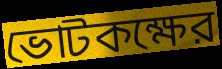
ভোটকক্ষের